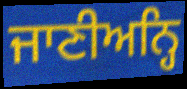
ਜਾਣੀਅਨ੍ਹਿ